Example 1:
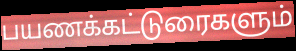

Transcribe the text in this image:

பயணக்கட்டுரைகளும்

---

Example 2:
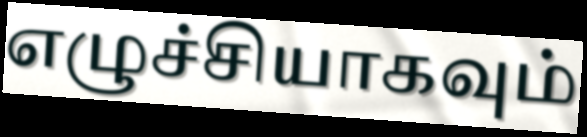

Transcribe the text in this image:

எழுச்சியாகவும்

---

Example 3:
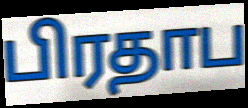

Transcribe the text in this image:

பிரதாப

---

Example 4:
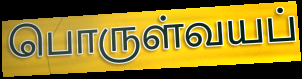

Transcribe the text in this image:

பொருள்வயப்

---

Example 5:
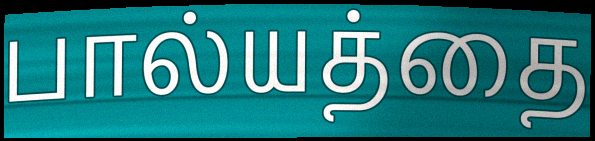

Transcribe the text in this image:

பால்யத்தை